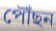
পৌঁছন